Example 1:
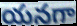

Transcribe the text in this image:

యనగా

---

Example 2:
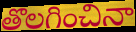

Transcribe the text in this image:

తొలగించినా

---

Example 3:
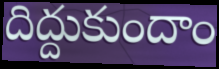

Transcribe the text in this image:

దిద్దుకుందాం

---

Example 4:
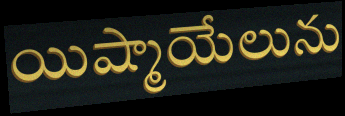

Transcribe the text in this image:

యిష్మాయేలును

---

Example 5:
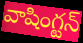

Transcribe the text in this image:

వాషింగ్టన్